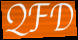
QFD